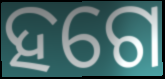
ହଗେ